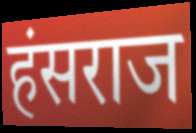
हंसराज